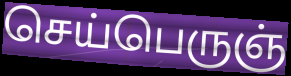
செய்பெருஞ்